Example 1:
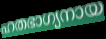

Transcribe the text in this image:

ഹതഭാഗ്യനായ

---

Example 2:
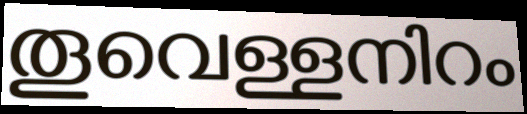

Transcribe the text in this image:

തൂവെള്ളനിറം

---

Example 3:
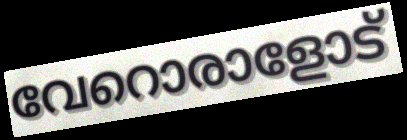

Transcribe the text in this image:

വേറൊരാളോട്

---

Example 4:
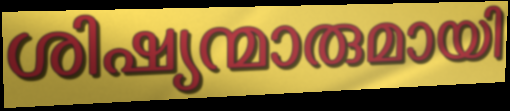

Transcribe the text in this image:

ശിഷ്യന്മാരുമായി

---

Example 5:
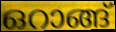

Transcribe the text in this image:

ഒറാങ്ങ്